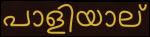
പാളിയാല്